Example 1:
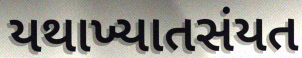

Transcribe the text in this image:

યથાખ્યાતસંયત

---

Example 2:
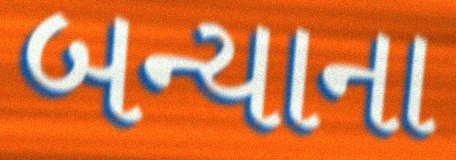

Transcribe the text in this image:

બન્યાના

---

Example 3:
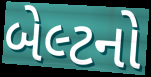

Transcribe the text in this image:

બેલ્ટનો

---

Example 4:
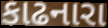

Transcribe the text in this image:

કાઢનારા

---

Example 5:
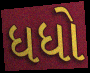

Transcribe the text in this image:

ધધો